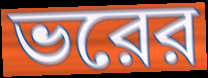
ভরের